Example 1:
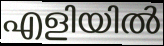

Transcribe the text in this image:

എളിയിൽ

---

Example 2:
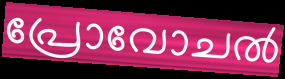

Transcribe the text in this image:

പ്രോവോചൽ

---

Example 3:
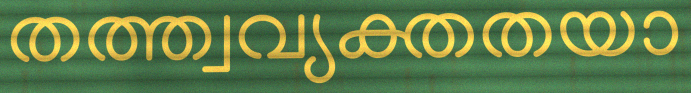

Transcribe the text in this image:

തത്ത്വവ്യക്തതയാ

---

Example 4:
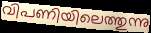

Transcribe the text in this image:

വിപണിയിലെത്തുന്നു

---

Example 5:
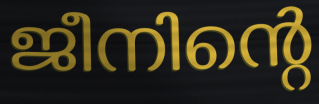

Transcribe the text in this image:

ജീനിന്റെ